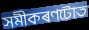
সমীকৰণটোত